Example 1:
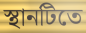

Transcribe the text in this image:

স্থানটিতে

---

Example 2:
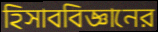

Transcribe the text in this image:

হিসাববিজ্ঞানের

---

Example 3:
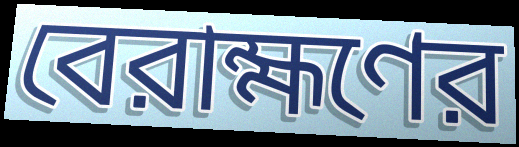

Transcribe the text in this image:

বেরাহ্মণের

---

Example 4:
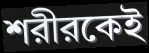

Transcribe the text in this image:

শরীরকেই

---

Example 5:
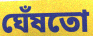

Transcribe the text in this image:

ঘেঁষতো